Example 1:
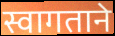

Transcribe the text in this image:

स्वागताने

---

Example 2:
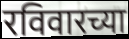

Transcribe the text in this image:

रविवारच्या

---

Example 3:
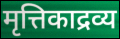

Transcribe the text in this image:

मृत्तिकाद्रव्य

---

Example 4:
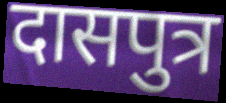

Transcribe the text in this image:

दासपुत्र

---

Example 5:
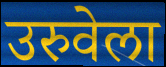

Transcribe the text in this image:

उरुवेला